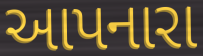
આપનારા